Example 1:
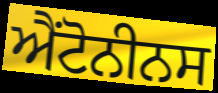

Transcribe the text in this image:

ਐਂਟੋਨੀਨਸ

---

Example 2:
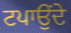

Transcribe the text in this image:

ਟਪਾਉਂਦੇ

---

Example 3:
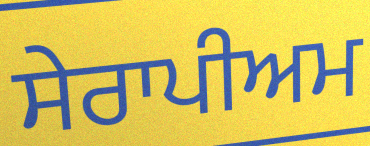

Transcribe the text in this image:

ਸੇਰਾਪੀਅਮ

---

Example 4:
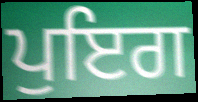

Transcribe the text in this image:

ਪੁਇਗ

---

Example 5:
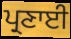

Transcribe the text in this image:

ਪ੍ਰਣਾਈ